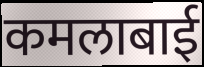
कमलाबाई